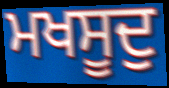
ਮਖਸੂਦੁ